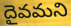
దైవమని